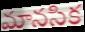
మానసిక